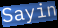
Sayin